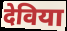
देविया